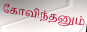
கோவிந்தனும்